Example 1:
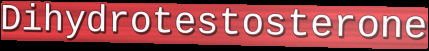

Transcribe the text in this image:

Dihydrotestosterone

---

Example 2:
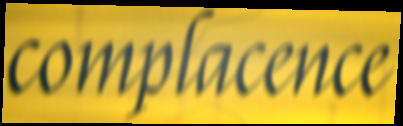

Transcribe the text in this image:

complacence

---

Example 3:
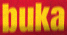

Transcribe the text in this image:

buka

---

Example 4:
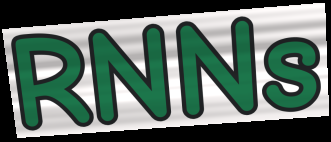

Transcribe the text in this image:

RNNs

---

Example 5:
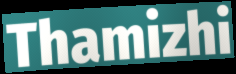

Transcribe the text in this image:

Thamizhi